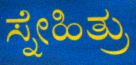
ಸ್ನೇಹಿತ್ರು